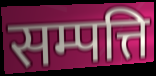
सम्पत्ति